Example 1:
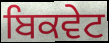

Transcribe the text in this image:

ਬਿਕਵੇਟ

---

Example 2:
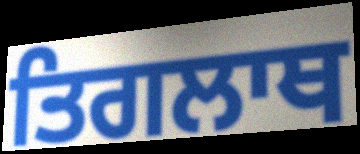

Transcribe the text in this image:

ਤਿਗਲਾਥ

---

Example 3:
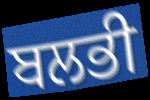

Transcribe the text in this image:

ਬਲਭੀ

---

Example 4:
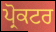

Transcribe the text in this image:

ਪ੍ਰੋਕਟਰ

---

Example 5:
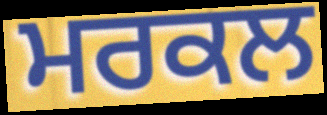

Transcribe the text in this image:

ਮਰਕਲ